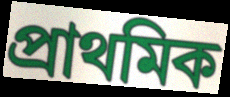
প্ৰাথমিক